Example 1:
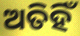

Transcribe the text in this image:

ଅତିହିଁ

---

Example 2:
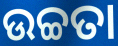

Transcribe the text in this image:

ଉଚ୍ଚତା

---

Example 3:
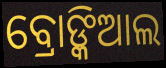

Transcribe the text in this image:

ବ୍ରୋଙ୍କିଆଲ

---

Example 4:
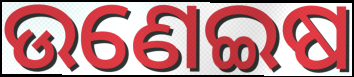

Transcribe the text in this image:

ଉଣେଇଷ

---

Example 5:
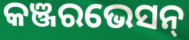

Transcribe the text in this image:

କଞ୍ଜରଭେସନ୍